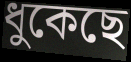
ধুকেছে